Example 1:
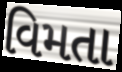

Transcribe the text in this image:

વિમતા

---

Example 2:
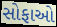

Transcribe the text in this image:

સોફાઓ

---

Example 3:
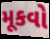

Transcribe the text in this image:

મૂકવો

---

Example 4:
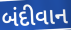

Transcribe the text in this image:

બંદીવાન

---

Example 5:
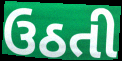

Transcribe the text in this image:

ઉઠતી